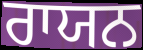
ਰਾਯਨ